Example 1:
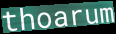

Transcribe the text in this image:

thoarum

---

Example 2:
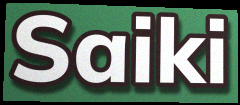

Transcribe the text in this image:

Saiki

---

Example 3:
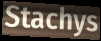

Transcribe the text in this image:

Stachys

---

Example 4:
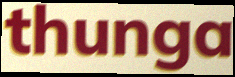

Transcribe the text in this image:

thunga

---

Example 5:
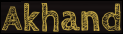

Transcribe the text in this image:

Akhand